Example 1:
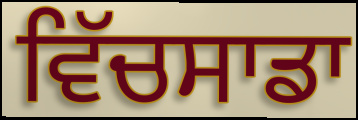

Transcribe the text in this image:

ਵਿੱਚਸਾਡਾ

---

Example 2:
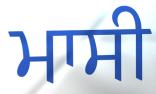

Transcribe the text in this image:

ਮਾਸੀ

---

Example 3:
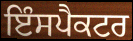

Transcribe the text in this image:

ਇੰਸਪੈਕਟਰ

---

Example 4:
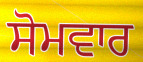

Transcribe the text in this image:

ਸੋਮਵਾਰ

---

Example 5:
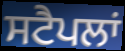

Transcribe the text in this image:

ਸਟੈਪਲਾਂ